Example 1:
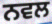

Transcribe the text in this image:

ਨਵਲ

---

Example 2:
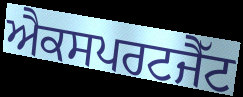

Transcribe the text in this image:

ਐਕਸਪਰਟਜੈੱਟ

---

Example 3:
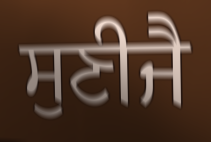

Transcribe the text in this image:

ਸੁਣੀਜੈ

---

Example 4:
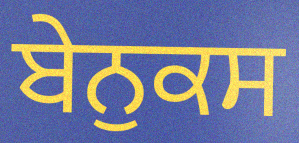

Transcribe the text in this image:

ਬੇਨੁਕਸ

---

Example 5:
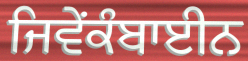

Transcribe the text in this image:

ਜਿਵੇਂਕੰਬਾਈਨ